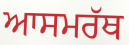
ਆਸਮਰੱਥ